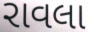
રાવલા